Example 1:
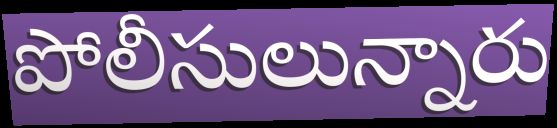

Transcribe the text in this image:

పోలీసులున్నారు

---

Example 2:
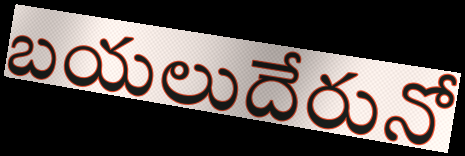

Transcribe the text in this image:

బయలుదేరునో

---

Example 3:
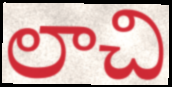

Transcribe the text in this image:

లాచి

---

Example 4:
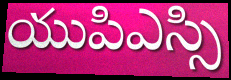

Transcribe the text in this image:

యుపిఎస్సి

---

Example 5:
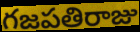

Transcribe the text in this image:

గజపతిరాజు